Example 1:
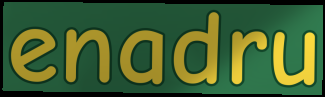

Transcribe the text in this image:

enadru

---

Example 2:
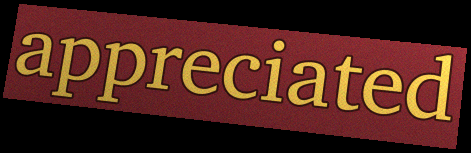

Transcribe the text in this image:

appreciated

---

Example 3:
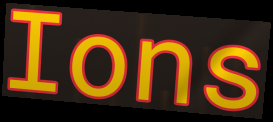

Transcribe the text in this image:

Ions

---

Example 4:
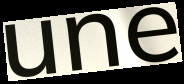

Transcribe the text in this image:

une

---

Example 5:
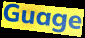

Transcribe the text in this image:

Guage